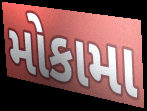
મોકામા